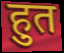
हुत